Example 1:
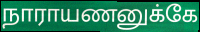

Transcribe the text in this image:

நாராயணனுக்கே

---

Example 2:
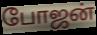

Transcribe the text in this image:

போஜன்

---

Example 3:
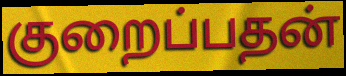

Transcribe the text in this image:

குறைப்பதன்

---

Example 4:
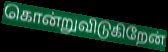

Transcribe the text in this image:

கொன்றுவிடுகிறேன்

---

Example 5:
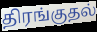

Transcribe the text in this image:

திரங்குதல்